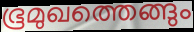
ഭൂമുഖത്തെങ്ങും